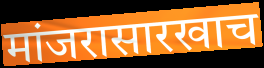
मांजरासारखाच